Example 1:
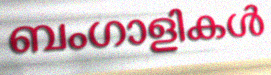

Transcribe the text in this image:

ബംഗാളികൾ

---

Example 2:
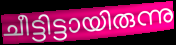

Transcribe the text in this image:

ചീട്ടിട്ടായിരുന്നു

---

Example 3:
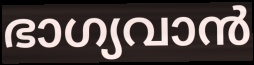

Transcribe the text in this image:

ഭാഗ്യവാൻ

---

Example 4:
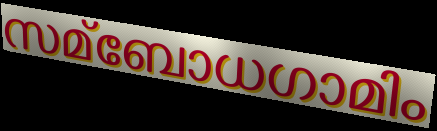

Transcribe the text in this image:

സമ്ബോധഗാമിം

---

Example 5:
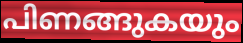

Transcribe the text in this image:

പിണങ്ങുകയും